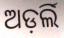
ଅଡ଼ର୍ଲି